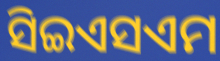
ସିଇଏସଏମ